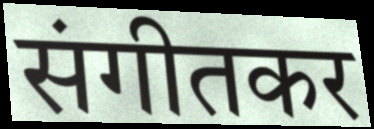
संगीतकर